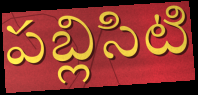
పబ్లిసిటి